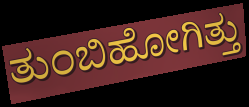
ತುಂಬಿಹೋಗಿತ್ತು